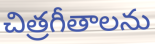
చిత్రగీతాలను